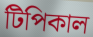
টিপিকাল